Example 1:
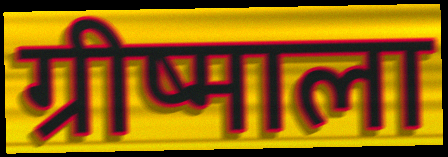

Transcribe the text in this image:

ग्रीष्माला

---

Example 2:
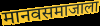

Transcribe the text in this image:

मानवसमाजाला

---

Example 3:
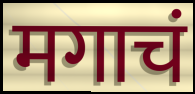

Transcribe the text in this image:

मगाचं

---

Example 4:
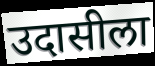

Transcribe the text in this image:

उदासीला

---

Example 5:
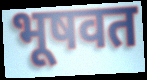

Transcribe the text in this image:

भूषवत